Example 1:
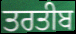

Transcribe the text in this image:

ਤਰਤੀਬ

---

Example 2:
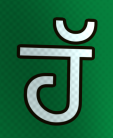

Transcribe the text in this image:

ਹੱ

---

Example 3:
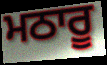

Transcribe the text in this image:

ਮਠਾਰੂ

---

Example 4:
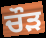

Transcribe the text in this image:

ਚੌੜ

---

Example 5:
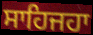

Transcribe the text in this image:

ਸਾਹਿਜਹਾ